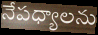
నేపధ్యాలను